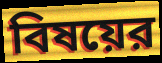
বিষয়ের